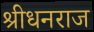
श्रीधनराज